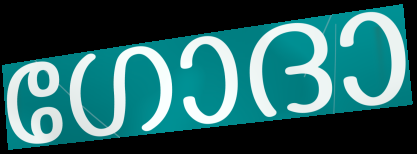
ഗോദാ